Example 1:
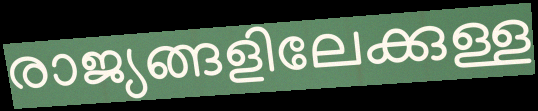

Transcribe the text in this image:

രാജ്യങ്ങളിലേക്കുള്ള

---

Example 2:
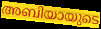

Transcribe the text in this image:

അബിയായുടെ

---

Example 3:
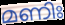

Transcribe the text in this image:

മണിഃ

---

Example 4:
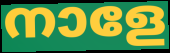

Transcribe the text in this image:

നാളേ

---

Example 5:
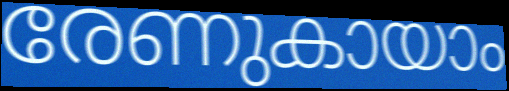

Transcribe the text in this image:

രേണുകായാം